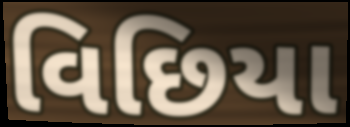
વિછિયા